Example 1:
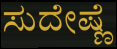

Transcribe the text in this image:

ಸುದೇಷ್ಣೆ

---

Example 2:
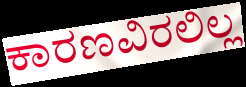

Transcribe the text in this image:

ಕಾರಣವಿರಲಿಲ್ಲ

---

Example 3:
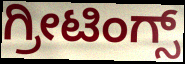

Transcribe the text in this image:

ಗ್ರೀಟಿಂಗ್ಸ್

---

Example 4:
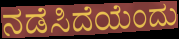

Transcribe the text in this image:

ನಡೆಸಿದೆಯೆಂದು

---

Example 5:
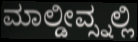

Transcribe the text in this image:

ಮಾಲ್ಡೀವ್ಸ್ನಲ್ಲಿ